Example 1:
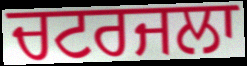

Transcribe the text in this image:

ਚਟਰਜਲਾ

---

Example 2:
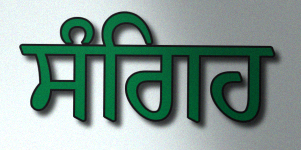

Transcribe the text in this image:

ਸੰਗਿਹ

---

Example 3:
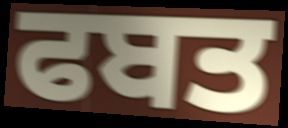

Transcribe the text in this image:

ਫਬਤ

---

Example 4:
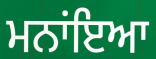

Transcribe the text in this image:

ਮਨਾਂਇਆ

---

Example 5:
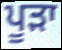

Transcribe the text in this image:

ਪੂੜਾ